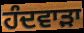
ਹੰਦਵਾੜਾ